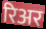
रिअर